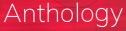
Anthology